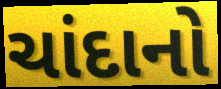
ચાંદાનો